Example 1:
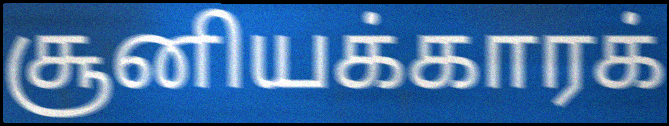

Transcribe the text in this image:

சூனியக்காரக்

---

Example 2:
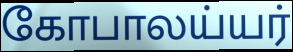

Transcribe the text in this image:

கோபாலய்யர்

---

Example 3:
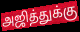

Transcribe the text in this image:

அஜித்துக்கு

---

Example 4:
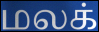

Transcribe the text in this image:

மலக்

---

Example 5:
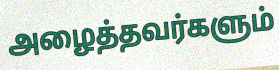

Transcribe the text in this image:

அழைத்தவர்களும்